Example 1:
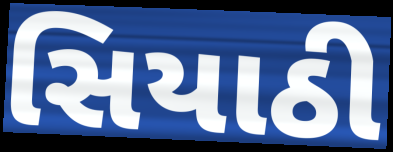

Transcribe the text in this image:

સિયાઠી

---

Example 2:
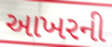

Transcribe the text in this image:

આખરની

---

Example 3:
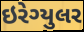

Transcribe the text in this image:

ઇરેગ્યુલર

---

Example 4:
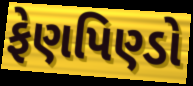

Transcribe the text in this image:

ફેણપિણ્ડો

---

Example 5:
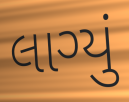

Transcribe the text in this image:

લાગ્યું